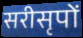
सरीसृपों